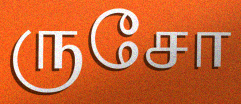
ருசோ